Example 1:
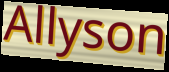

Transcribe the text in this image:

Allyson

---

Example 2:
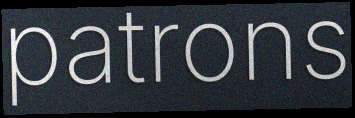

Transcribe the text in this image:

patrons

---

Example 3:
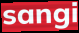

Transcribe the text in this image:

sangi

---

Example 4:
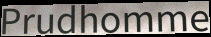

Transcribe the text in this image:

Prudhomme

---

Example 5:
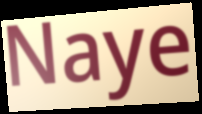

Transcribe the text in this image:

Naye